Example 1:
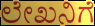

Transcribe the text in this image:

ಲೇಖನಿಗೆ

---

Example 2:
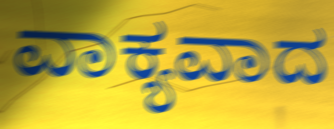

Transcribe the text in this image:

ವಾಕ್ಯವಾದ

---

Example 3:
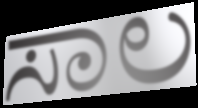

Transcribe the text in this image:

ಸಾಲ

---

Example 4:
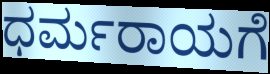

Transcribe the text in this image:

ಧರ್ಮರಾಯಗೆ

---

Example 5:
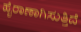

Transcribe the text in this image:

ಹೈರಾಣಾಗಿಸುತ್ತಿದೆ